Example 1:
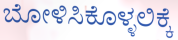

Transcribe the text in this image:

ಬೋಳಿಸಿಕೊಳ್ಳಲಿಕ್ಕೆ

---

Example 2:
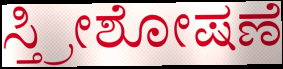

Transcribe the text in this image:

ಸ್ತ್ರೀಶೋಷಣೆ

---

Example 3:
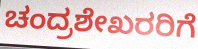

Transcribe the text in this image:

ಚಂದ್ರಶೇಖರರಿಗೆ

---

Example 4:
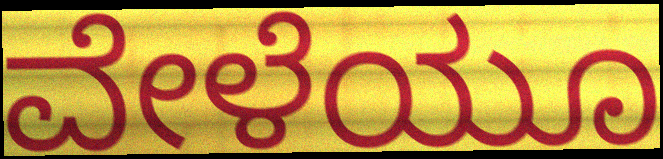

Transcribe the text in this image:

ವೇಳೆಯೂ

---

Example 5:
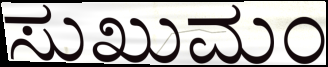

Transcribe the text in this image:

ಸುಖುಮಂ